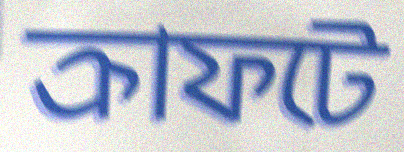
ক্রাফটে